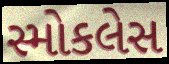
સ્મોકલેસ